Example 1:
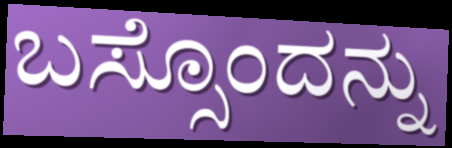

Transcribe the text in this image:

ಬಸ್ಸೊಂದನ್ನು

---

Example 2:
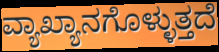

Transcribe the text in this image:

ವ್ಯಾಖ್ಯಾನಗೊಳ್ಳುತ್ತದೆ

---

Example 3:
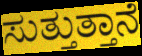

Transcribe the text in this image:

ಸುತ್ತುತ್ತಾನೆ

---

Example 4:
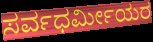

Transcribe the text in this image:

ಸರ್ವಧರ್ಮೀಯರ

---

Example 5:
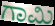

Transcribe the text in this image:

ಗಾಮಿ